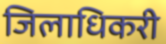
जिलाधिकरी